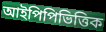
আইপিপিভিত্তিক